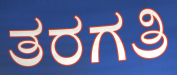
ತರಗತಿ